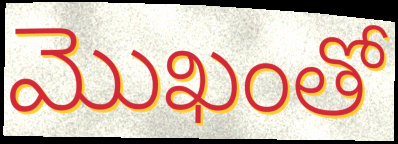
మొఖంతో